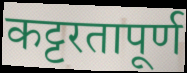
कट्टरतापूर्ण